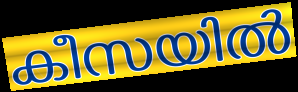
കീസയിൽ